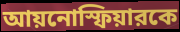
আয়নোস্ফিয়ারকে